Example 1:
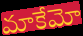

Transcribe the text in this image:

మాకేమో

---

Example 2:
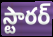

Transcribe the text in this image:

స్టారర్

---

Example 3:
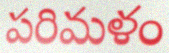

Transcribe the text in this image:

పరిమళం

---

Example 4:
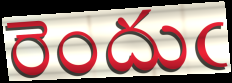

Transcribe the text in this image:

రెందుఁ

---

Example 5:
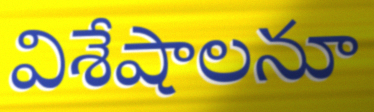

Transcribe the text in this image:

విశేషాలనూ